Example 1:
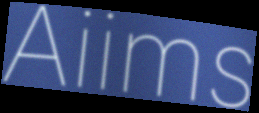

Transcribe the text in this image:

Aiims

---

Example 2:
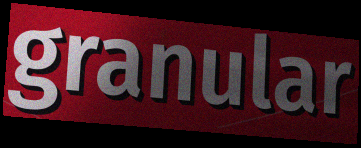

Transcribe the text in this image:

granular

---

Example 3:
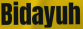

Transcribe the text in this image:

Bidayuh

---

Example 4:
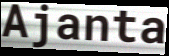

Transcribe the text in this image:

Ajanta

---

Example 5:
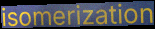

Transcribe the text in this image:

isomerization